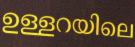
ഉള്ളറയിലെ